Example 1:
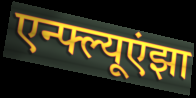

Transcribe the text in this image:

एन्फ्ल्यूएंझा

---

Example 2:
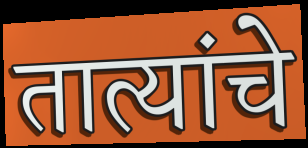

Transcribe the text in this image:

तात्यांचे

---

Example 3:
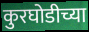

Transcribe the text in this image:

कुरघोडीच्या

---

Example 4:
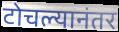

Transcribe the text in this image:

टोचल्यानंतर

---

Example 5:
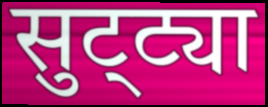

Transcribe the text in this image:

सुट्‌ट्या